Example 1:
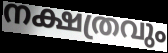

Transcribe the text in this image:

നക്ഷത്രവും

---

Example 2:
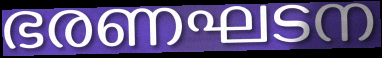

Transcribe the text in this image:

ഭരണഘടന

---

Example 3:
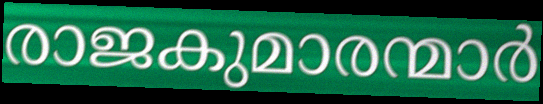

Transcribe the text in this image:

രാജകുമാരന്മാർ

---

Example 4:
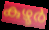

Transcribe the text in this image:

കുഴൂർ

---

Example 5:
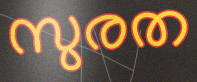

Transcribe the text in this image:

സുരത